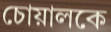
চোয়ালকে